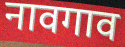
नावगाव